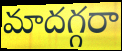
మాదగ్గరా